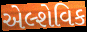
એલ્શેવિક